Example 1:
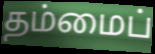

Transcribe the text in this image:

தம்மைப்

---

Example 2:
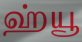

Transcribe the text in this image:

ஹ்யூ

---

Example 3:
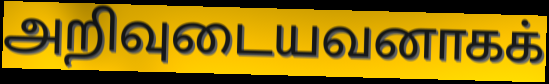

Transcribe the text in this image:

அறிவுடையவனாகக்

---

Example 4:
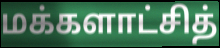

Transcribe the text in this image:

மக்களாட்சித்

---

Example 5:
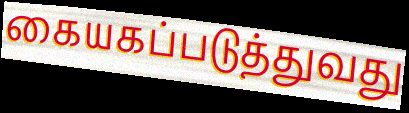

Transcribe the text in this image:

கையகப்படுத்துவது